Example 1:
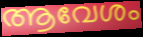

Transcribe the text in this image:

ആവേശം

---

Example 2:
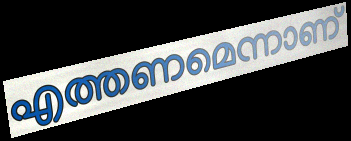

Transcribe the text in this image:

എത്തണമെന്നാണ്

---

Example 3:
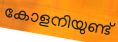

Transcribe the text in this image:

കോളനിയുണ്ട്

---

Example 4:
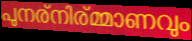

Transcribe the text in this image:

പുനര്നിര്മ്മാണവും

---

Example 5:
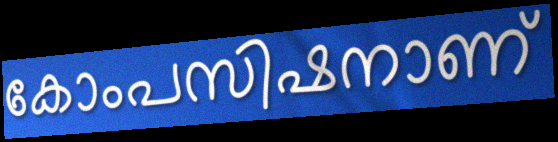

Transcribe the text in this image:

കോംപസിഷനാണ്